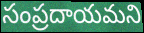
సంప్రదాయమని